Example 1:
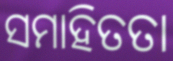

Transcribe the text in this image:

ସମାହିତତା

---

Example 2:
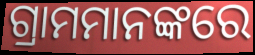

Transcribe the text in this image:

ଗ୍ରାମମାନଙ୍କରେ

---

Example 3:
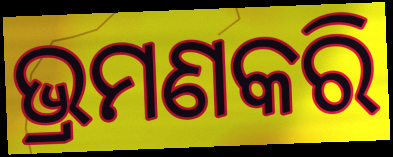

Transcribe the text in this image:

ଭ୍ରମଣକରି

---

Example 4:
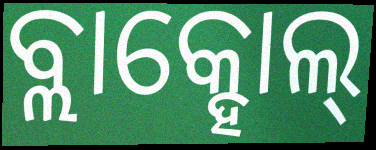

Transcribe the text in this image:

ବ୍ଲାକ୍ହୋଲ୍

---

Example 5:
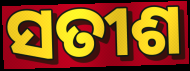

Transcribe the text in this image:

ସତୀଶ